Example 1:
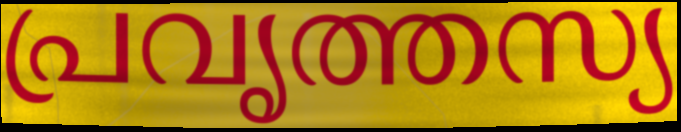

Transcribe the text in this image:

പ്രവൃത്തസ്യ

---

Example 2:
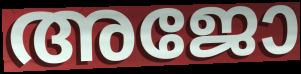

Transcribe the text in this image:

അജോ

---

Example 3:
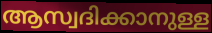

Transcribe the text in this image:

ആസ്വദിക്കാനുള്ള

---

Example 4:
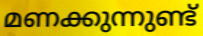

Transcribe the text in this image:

മണക്കുന്നുണ്ട്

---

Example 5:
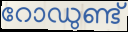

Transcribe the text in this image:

റോഡുണ്ട്